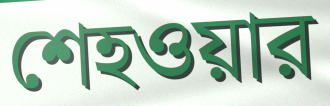
শেহওয়ার